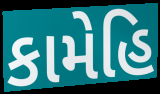
કામેહિ